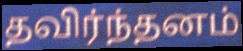
தவிர்ந்தனம்